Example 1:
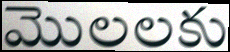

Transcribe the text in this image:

మొలలకు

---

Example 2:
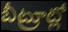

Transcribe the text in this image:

బీట్రూట్లో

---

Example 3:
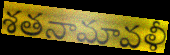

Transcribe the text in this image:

శతనామావళీ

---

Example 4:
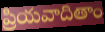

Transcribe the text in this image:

ప్రియవాదితాం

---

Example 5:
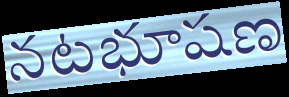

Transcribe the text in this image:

నటభూషణ